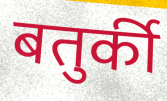
बतुर्की